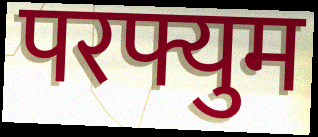
परफ्युम